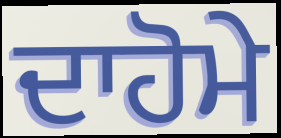
ਦਾਹੋਮੇ